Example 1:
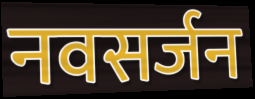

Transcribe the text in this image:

नवसर्जन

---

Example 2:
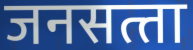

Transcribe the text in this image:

जनसत्‍ता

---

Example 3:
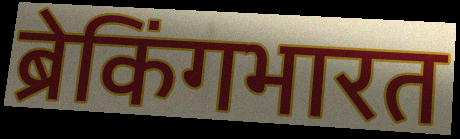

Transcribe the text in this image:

ब्रेकिंगभारत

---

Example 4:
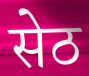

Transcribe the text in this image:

सेठ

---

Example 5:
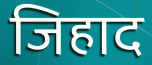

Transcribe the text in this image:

जिहाद